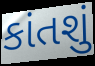
કાંતશું